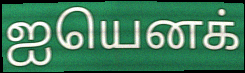
ஐயெனக்